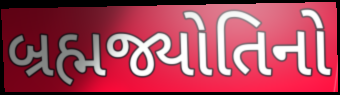
બ્રહ્મજ્યોતિનો